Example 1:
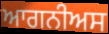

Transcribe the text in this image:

ਆਗਨੀਅਸ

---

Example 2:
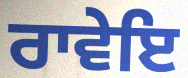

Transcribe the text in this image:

ਰਾਵੇਇ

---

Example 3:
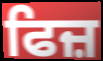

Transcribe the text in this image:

ਫਿਜ਼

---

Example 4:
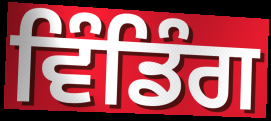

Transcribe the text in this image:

ਵਿੰਡਿੰਗ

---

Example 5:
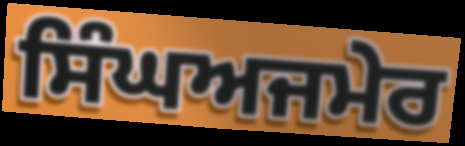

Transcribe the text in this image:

ਸਿੰਘਅਜਮੇਰ